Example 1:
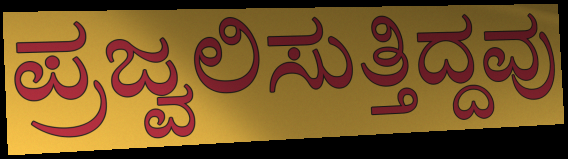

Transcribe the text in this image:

ಪ್ರಜ್ವಲಿಸುತ್ತಿದ್ದವು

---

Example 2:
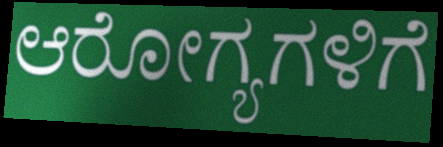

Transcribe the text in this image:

ಆರೋಗ್ಯಗಳಿಗೆ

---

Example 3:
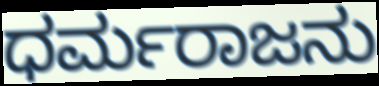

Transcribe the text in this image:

ಧರ್ಮರಾಜನು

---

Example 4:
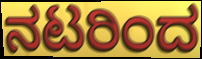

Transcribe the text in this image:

ನಟರಿಂದ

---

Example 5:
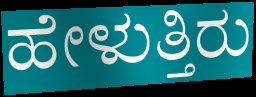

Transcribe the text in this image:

ಹೇಳುತ್ತಿರು